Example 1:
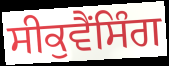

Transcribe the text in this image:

ਸੀਕੁਵੈਂਸਿੰਗ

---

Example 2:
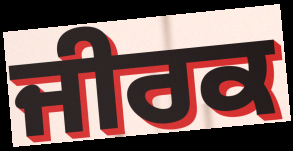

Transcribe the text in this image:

ਜੀਰਕ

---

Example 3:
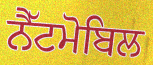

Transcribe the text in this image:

ਨੈੱਟਮੋਬਿਲ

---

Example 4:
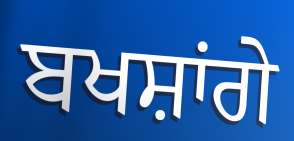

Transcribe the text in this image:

ਬਖਸ਼ਾਂਗੇ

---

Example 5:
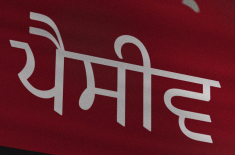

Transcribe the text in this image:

ਪੈਸੀਵ